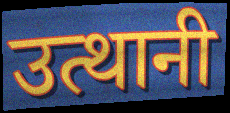
उत्थानी